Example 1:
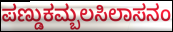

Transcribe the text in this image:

ಪಣ್ಡುಕಮ್ಬಲಸಿಲಾಸನಂ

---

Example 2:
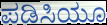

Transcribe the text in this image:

ಪಡಿಸಿಯೂ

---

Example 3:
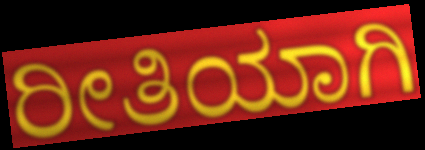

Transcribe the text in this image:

ರೀತಿಯಾಗಿ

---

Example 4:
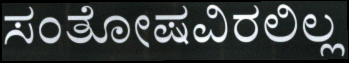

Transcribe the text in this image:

ಸಂತೋಷವಿರಲಿಲ್ಲ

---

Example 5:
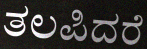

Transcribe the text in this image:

ತಲಪಿದರೆ